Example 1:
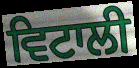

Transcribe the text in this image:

ਵਿਟਾਲੀ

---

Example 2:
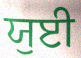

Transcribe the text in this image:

ਯੁਈ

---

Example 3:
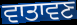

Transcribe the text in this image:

ਵਾਤਾਵਣ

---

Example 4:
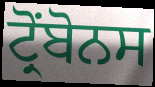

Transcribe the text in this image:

ਟ੍ਰੋਂਬੋਨਸ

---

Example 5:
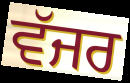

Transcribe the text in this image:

ਵੱਜਰ